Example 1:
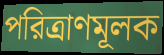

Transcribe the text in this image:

পরিত্রাণমূলক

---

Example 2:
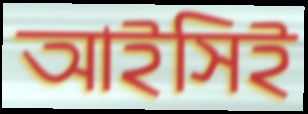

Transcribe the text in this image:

আইসিই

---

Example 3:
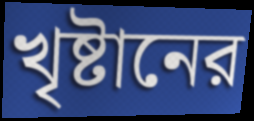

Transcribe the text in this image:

খৃষ্টানের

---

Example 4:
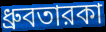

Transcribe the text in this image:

ধ্রুবতারকা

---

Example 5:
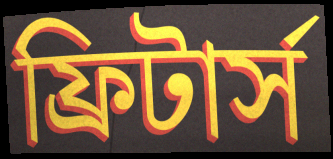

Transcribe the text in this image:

ফ্রিটার্স